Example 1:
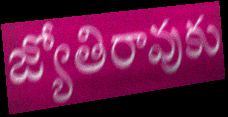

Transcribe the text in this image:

జ్యోతిరావుకు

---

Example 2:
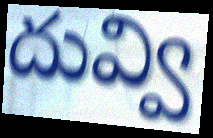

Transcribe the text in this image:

దువ్వి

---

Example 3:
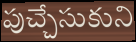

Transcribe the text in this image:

పుచ్చేసుకుని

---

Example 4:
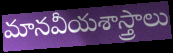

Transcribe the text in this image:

మానవీయశాస్త్రాలు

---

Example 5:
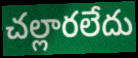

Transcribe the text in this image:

చల్లారలేదు